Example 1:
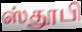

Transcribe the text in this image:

ஸ்தூபி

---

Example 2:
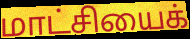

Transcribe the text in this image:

மாட்சியைக்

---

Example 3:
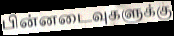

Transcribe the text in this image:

பின்னடைவுகளுக்கு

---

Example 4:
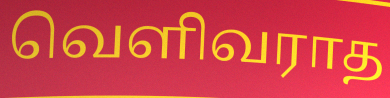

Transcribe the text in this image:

வெளிவராத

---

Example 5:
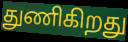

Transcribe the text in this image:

துணிகிறது